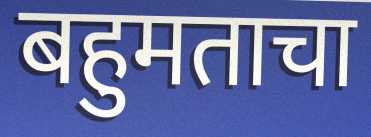
बहुमताचा